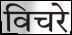
विचरे